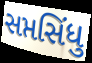
સપ્તસિંધુ